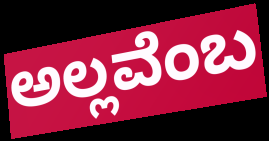
ಅಲ್ಲವೆಂಬ